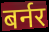
बर्नर